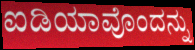
ಐಡಿಯಾವೊಂದನ್ನು